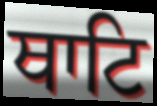
ਥਾਟਿ